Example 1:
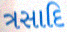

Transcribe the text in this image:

ત્રસાદિ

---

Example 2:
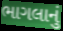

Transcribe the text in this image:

ભાગલાનું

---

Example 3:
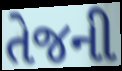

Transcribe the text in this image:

તેજની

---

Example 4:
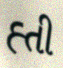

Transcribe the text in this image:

હ્તી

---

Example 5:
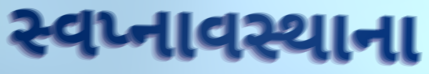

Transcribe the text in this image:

સ્વપ્નાવસ્થાના